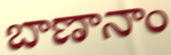
బాణానాం